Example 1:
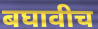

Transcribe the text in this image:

बघावीच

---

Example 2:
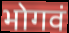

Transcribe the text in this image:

भोगवं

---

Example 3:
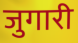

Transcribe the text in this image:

जुगारी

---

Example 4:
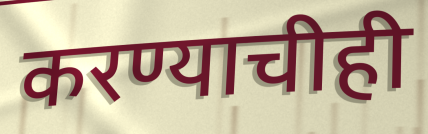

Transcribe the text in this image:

करण्याचीही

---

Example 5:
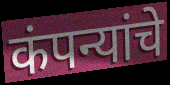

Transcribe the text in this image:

कंपन्यांचे